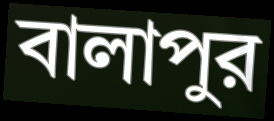
বালাপুর